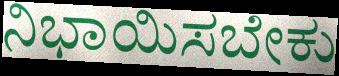
ನಿಭಾಯಿಸಬೇಕು